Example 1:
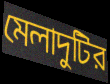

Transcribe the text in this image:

মেলাদুটির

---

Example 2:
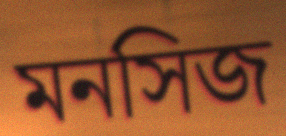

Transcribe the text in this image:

মনসিজ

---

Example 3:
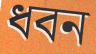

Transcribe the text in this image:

ধবন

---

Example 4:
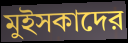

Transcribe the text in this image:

মুইসকাদের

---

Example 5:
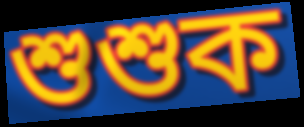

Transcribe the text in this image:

শুশুক